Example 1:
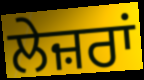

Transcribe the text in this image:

ਲੇਜ਼ਰਾਂ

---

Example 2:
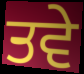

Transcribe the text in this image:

ਤਵੇ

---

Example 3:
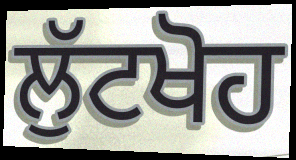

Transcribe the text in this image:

ਲੁੱਟਖੋਹ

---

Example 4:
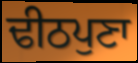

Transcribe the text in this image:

ਢੀਠਪੁਣਾ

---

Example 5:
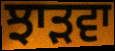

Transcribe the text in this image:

ਝਾੜਵਾ